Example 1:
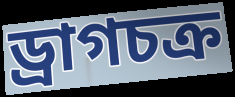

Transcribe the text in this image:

ড্রাগচক্র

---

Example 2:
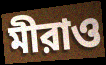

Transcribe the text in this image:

মীরাও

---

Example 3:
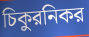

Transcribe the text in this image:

চিকুরনিকর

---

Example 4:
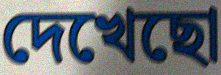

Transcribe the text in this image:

দেখেছো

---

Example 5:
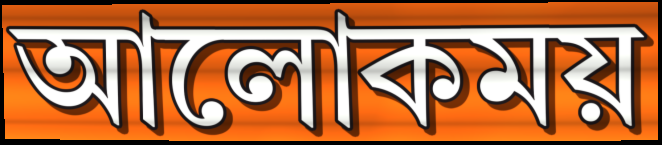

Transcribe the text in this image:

আলোকময়